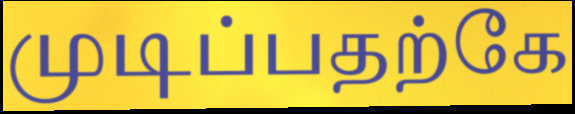
முடிப்பதற்கே